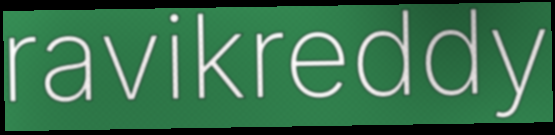
ravikreddy